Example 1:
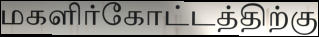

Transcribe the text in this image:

மகளிர்கோட்டத்திற்கு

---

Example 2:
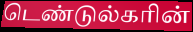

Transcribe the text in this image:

டெண்டுல்கரின்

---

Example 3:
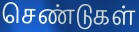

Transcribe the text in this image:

செண்டுகள்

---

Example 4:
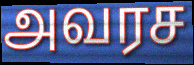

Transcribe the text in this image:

அவரச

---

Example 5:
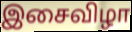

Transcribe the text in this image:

இசைவிழா